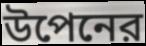
উপেনের